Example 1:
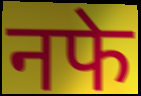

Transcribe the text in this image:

नफे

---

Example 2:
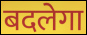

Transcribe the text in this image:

बदलेगा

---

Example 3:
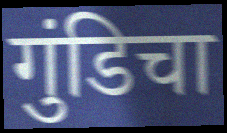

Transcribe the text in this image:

गुंडिचा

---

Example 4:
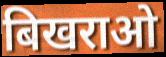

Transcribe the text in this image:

बिखराओ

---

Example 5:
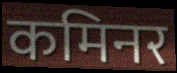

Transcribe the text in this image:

कमिनर